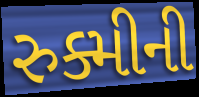
રુક્મીની